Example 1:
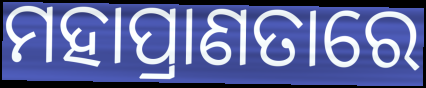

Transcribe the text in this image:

ମହାପ୍ରାଣତାରେ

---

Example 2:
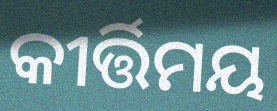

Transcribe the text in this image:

କୀର୍ତ୍ତିମୟ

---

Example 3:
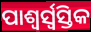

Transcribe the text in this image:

ପାଶ୍ୱର୍ସ୍ୱସ୍ତିକ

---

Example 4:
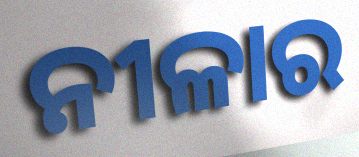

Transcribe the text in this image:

ନୀଳାର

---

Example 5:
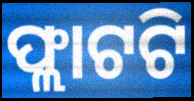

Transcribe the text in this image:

ଫ୍ଲାଟଟି